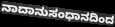
ನಾದಾನುಸಂಧಾನದಿಂದ